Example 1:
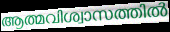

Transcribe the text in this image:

ആത്മവിശ്വാസത്തിൽ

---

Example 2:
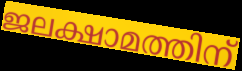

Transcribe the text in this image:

ജലക്ഷാമത്തിന്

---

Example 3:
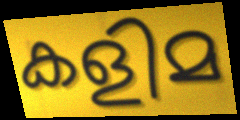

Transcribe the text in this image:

കളിമ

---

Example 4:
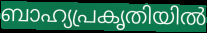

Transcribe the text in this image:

ബാഹ്യപ്രകൃതിയിൽ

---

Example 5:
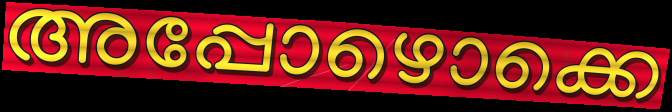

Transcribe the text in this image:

അപ്പോഴൊക്കെ